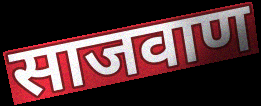
साजवाण